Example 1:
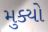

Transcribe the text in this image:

મુક્યો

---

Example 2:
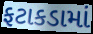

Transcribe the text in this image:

ફટાકડામાં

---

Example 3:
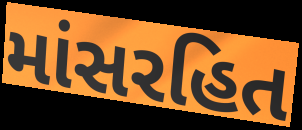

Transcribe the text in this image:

માંસરહિત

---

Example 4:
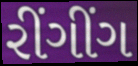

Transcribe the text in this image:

રીંગીંગ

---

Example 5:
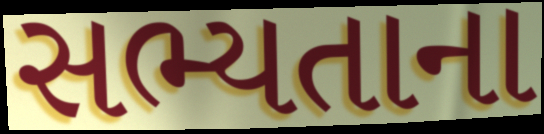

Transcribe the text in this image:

સભ્યતાના